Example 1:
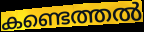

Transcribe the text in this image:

കണ്ടെത്തൽ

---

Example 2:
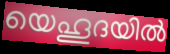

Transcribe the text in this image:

യെഹൂദയിൽ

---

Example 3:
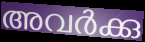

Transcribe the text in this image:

അവർക്കു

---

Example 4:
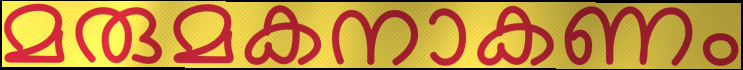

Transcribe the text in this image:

മരുമകനാകണം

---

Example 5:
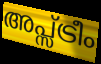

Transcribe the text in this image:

അപ്സ്ട്രീം